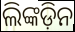
ଲିଙ୍କଡ଼ିନ